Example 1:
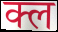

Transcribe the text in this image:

क्ल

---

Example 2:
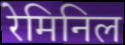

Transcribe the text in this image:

रेमिनिल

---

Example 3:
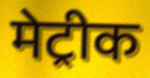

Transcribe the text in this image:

मेट्रीक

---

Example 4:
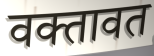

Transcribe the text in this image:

वक्तावत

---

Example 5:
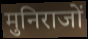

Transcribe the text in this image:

मुनिराजों